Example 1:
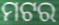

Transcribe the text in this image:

ମଟର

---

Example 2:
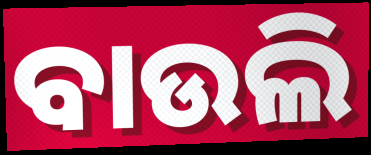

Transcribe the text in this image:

ବାଉଲି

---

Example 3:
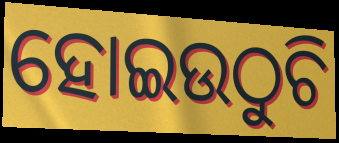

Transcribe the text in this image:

ହୋଇଉଠୁଚି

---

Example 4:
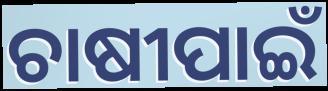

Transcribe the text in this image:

ଚାଷୀପାଇଁ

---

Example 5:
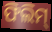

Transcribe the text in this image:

ଫିଲିମ୍